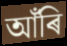
আঁৰি